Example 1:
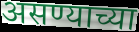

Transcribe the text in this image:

असण्याच्या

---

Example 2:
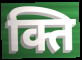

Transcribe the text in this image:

क्ति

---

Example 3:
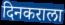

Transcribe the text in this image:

दिनकराला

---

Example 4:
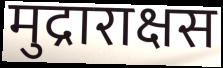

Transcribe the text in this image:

मुद्राराक्षस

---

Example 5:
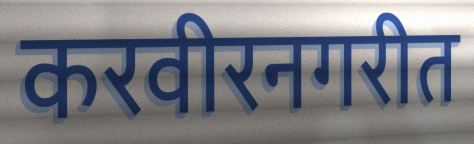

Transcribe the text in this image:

करवीरनगरीत